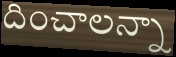
దించాలన్నా